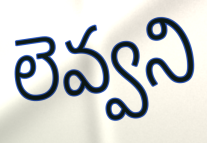
లెవ్వని